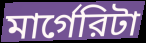
মার্গেরিটা